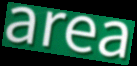
area